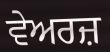
ਵੇਅਰਜ਼